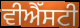
ਵੀਐੱਸਟੀ